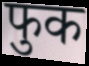
फुक